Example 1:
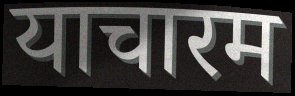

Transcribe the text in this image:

याचारम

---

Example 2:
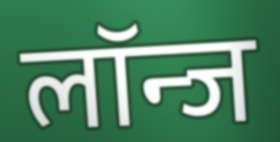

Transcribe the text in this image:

लॉन्ज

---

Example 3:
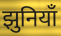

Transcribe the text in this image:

झुनियाँ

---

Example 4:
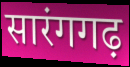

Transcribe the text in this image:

सारंगगढ़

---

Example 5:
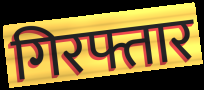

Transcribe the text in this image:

गिरफ्‍तार